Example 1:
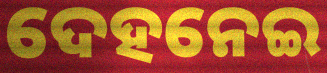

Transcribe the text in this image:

ଦେହନେଇ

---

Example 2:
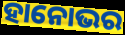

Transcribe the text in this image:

ହାନୋଭର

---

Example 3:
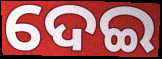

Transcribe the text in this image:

ଦେଇ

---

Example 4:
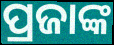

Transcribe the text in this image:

ପ୍ରଜାଙ୍କ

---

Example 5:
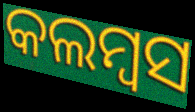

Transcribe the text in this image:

କଲମ୍ବସ